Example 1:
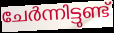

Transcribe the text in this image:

ചേർന്നിട്ടുണ്ട്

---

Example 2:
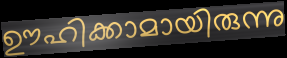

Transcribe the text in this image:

ഊഹിക്കാമായിരുന്നു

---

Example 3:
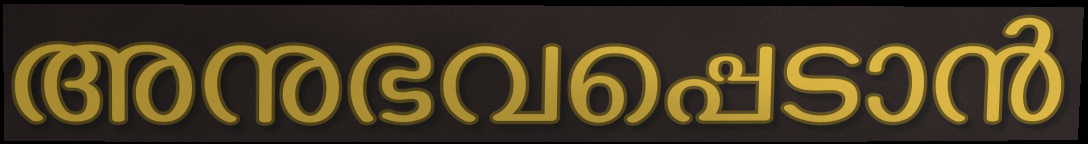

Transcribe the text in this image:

അനുഭവപ്പെടാൻ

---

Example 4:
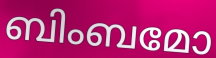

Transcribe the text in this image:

ബിംബമോ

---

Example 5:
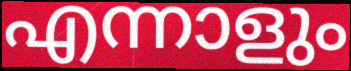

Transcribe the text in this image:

എന്നാളും